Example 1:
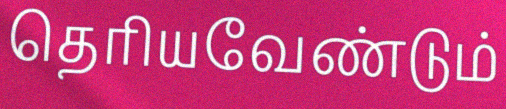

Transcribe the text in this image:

தெரியவேண்டும்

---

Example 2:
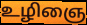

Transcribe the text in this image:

உழிஞை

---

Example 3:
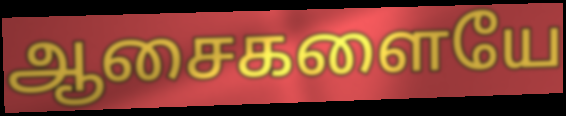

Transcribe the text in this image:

ஆசைகளையே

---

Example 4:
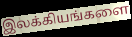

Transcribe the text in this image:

இலக்கியங்களை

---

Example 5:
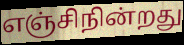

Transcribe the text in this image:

எஞ்சிநின்றது